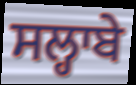
ਸਲ੍ਹਾਬੇ